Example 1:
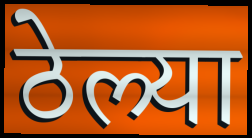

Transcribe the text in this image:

ठेल्या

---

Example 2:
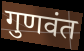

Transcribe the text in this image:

गुणवंत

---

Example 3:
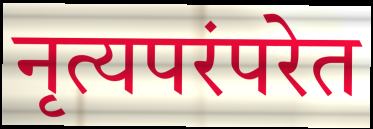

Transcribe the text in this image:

नृत्यपरंपरेत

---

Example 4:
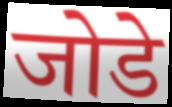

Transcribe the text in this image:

जोडे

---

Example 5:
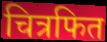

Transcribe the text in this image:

चित्रफित